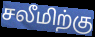
சலீமிற்கு